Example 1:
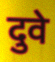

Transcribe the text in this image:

दुवे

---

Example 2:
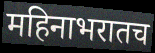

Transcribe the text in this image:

महिनाभरातच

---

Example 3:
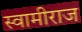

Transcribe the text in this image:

स्वामीराज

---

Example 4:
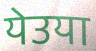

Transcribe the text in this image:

येउया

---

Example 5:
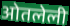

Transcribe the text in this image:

ओतलेली